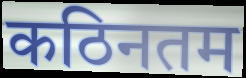
कठिनतम